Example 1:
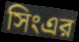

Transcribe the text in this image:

সিংএর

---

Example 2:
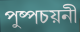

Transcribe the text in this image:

পুষ্পচয়নী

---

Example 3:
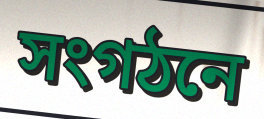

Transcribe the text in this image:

সংগঠনে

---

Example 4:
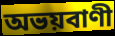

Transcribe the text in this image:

অভয়বাণী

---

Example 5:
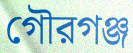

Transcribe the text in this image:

গৌরগঞ্জ